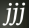
jjj